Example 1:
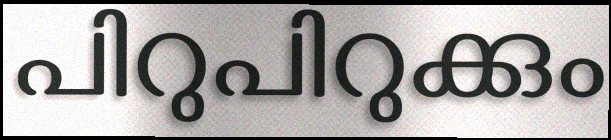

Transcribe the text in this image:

പിറുപിറുക്കും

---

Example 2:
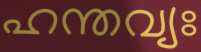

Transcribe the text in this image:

ഹന്തവ്യഃ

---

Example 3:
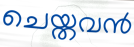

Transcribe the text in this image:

ചെയ്തവൻ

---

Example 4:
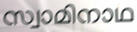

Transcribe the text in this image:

സ്വാമിനാഥ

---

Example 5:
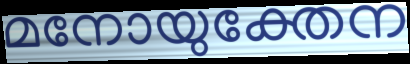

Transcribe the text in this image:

മനോയുക്തേന